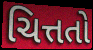
ચિત્તતો